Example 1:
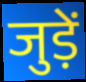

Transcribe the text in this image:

जुड़ें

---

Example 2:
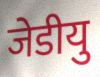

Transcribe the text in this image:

जेडीयु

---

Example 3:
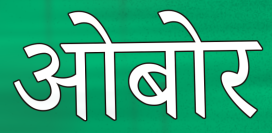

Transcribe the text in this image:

ओबोर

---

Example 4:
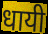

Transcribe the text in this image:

धायी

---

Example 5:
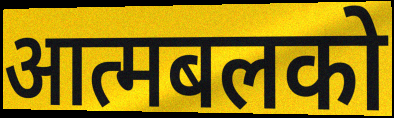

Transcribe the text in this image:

आत्मबलको